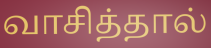
வாசித்தால்